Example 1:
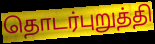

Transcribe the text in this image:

தொடர்புறுத்தி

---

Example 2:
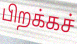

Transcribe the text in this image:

பிறக்கச்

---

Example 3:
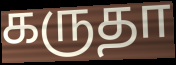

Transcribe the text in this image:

கருதா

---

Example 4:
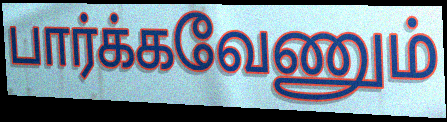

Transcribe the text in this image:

பார்க்கவேணும்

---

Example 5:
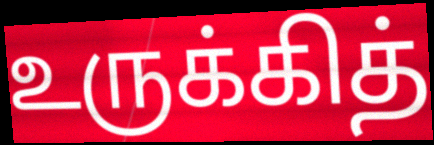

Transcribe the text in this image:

உருக்கித்